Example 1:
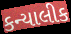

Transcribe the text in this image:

કન્યાલીક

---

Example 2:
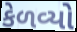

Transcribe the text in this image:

કેળવ્યો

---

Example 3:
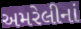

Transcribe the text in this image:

અમરેલીનાં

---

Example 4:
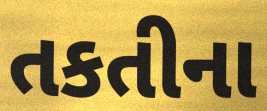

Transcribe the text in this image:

તકતીના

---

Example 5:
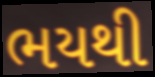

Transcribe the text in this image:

ભયથી